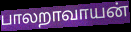
பாலறாவாயன்